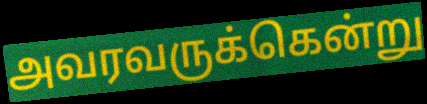
அவரவருக்கென்று